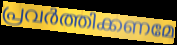
പ്രവർത്തിക്കണമേ